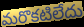
మరొకటిలేదు